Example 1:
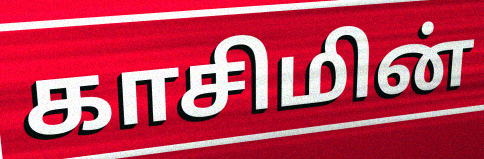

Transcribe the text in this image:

காசிமின்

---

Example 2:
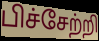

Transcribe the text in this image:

பிச்சேற்றி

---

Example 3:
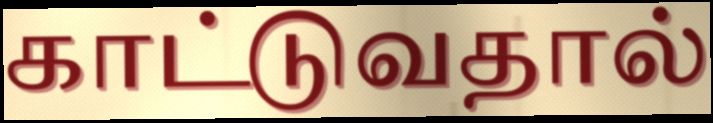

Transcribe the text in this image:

காட்டுவதால்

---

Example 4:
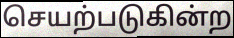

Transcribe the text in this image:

செயற்படுகின்ற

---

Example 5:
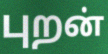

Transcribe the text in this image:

புறன்